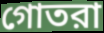
গোতরা